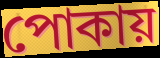
পোকায়